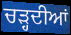
ਚੜ੍ਹਦੀਆਂ